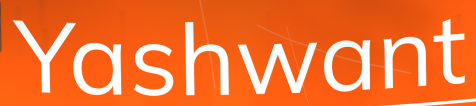
Yashwant